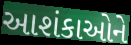
આશંકાઓને